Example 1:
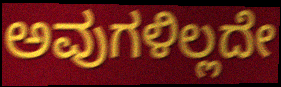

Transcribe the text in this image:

ಅವುಗಳಿಲ್ಲದೇ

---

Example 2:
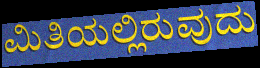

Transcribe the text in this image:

ಮಿತಿಯಲ್ಲಿರುವುದು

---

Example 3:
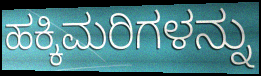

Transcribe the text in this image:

ಹಕ್ಕಿಮರಿಗಳನ್ನು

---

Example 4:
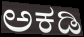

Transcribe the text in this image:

ಅಕಡಿ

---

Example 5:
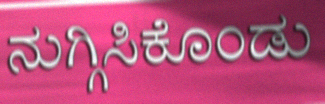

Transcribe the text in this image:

ನುಗ್ಗಿಸಿಕೊಂಡು